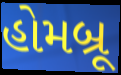
હોમબ્રૂ